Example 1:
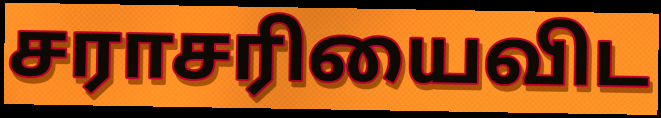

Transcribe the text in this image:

சராசரியைவிட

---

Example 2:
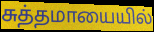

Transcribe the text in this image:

சுத்தமாயையில்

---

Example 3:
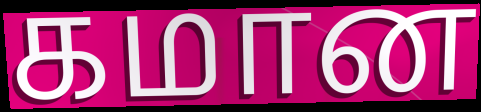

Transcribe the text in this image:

கமான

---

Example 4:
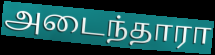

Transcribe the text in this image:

அடைந்தாரா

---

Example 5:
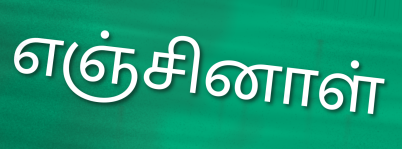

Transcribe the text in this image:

எஞ்சினாள்